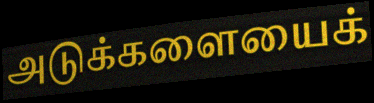
அடுக்களையைக்